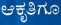
ಆಕೃತಿಗೂ